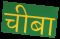
चीबा